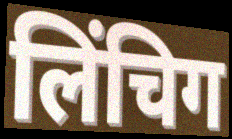
लिंचिग